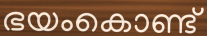
ഭയംകൊണ്ട്